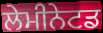
ਲੇਮੀਨੇਟਡ